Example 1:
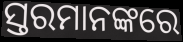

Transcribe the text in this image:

ସ୍ତରମାନଙ୍କରେ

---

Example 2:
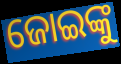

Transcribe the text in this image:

ଜୋଇଙ୍କୁ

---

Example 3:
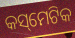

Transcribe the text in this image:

କସ୍‌ମେଟିକ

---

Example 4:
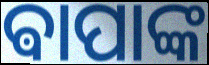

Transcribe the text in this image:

ଵାପାଙ୍କ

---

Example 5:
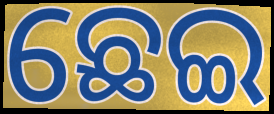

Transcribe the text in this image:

ଛେଇ